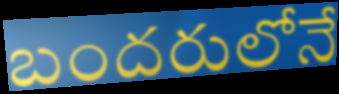
బందరులోనే